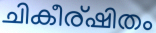
ചികീര്ഷിതം